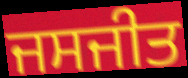
ਜਸਜੀਤ